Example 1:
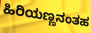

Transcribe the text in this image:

ಹಿರಿಯಣ್ಣನಂತಹ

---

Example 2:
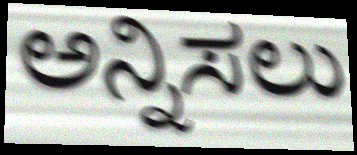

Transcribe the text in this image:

ಅನ್ನಿಸಲು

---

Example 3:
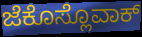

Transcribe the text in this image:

ಜೆಕೊಸ್ಲೊವಾಕ್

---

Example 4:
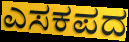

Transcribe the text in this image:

ಎಸಕಪದ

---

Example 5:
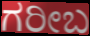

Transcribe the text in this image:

ಗರೀಬ